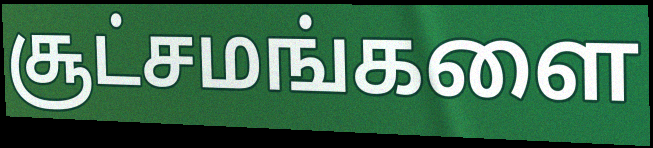
சூட்சமங்களை